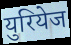
युरियेज